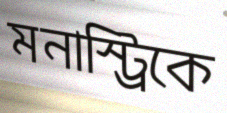
মনাস্ট্রিকে